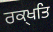
ਰਕ੍ਖਤਿ